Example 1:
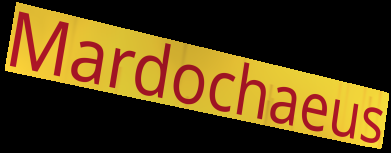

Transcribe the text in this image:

Mardochaeus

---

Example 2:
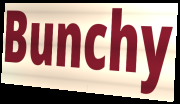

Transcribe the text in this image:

Bunchy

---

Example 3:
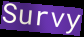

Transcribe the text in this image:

Survy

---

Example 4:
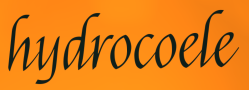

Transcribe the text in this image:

hydrocoele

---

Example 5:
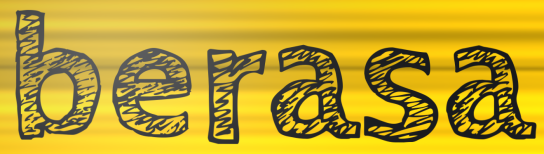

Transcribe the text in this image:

berasa